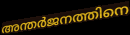
അന്തർജനത്തിനെ